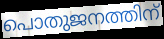
പൊതുജനത്തിന്